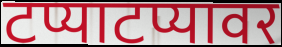
टप्याटप्यावर